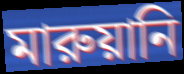
মারুয়ানি